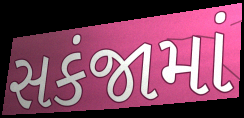
સકંજામાં